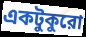
একটুকুরো